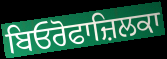
ਬਿਓਰੋਫਾਜ਼ਿਲਕਾ